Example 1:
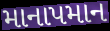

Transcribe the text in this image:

માનાપમાન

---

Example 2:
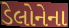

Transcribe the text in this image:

ડેલોનેના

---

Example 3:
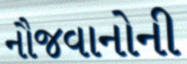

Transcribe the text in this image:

નૌજવાનોની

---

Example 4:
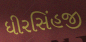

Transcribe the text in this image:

ધીરસિંહજી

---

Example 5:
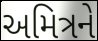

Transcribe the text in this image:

અમિત્રને